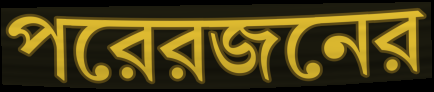
পরেরজনের